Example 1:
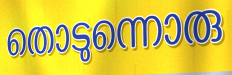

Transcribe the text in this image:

തൊടുന്നൊരു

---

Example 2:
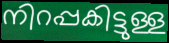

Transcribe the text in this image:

നിറപ്പകിട്ടുള്ള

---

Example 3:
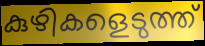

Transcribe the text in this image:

കുഴികളെടുത്ത്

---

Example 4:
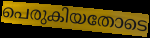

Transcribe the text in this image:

പെരുകിയതോടെ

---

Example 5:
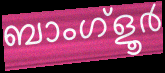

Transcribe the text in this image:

ബാംഗ്ളൂർ